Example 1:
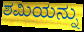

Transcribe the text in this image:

ಶಮಿಯನ್ನು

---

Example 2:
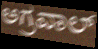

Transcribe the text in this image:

ಅಗ್ರವಾಲ್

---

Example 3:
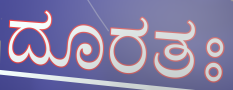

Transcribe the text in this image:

ದೂರತಃ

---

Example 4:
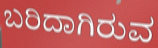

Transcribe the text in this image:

ಬರಿದಾಗಿರುವ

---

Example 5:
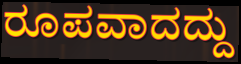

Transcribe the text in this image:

ರೂಪವಾದದ್ದು